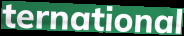
ternational